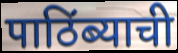
पाठिंब्याची